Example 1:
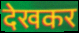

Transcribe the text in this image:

देखकर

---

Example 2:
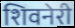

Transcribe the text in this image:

शिवनेरी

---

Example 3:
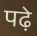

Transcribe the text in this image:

पढ़े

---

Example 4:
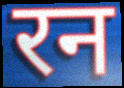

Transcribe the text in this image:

रन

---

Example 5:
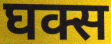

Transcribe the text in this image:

घक्स